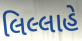
લિલ્લાહે